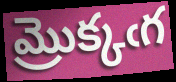
మ్రొక్కఁగ